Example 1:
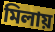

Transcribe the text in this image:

মিলায়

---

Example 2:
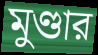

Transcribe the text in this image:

মুণ্ডার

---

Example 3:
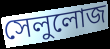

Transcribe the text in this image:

সেলুলোজ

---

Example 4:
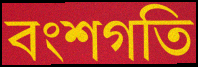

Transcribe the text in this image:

বংশগতি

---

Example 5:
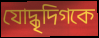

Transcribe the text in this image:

যোদ্ধৃদিগকে